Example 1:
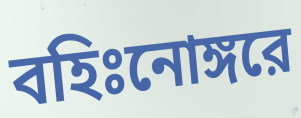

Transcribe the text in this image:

বহিঃনোঙ্গরে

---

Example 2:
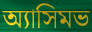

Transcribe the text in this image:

অ্যাসিমভ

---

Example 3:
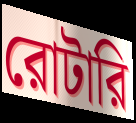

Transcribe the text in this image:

রোটারি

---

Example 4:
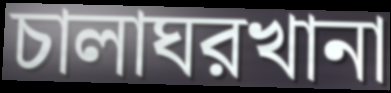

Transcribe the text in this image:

চালাঘরখানা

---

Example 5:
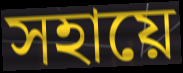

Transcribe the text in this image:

সহায়ে